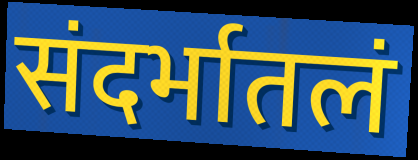
संदर्भातलं